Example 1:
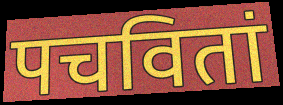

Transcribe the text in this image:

पचवितां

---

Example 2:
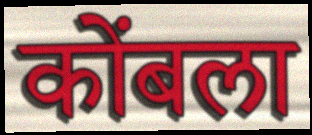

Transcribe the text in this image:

कोंबला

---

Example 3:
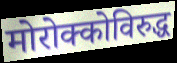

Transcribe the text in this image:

मोरोक्कोविरुद्ध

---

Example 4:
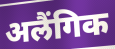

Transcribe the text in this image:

अलैंगिक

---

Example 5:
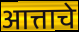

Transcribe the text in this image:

आत्ताचे